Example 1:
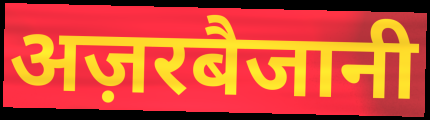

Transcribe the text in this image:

अज़रबैजानी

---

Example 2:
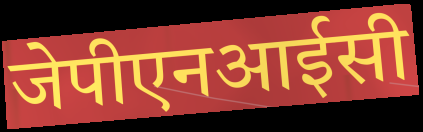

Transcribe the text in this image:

जेपीएनआईसी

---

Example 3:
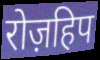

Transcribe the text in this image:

रोज़हिप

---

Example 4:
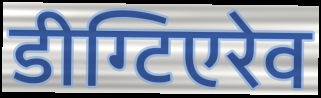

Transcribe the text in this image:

डीग्टिएरेव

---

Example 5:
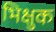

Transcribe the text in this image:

भिक्षुक